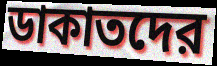
ডাকাতদের